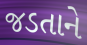
જડતાને